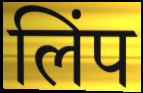
लिंप